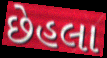
છેહલા